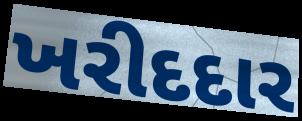
ખરીદદાર